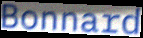
Bonnard